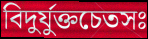
বিদুর্যুক্তচেতসঃ